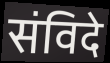
संविदे